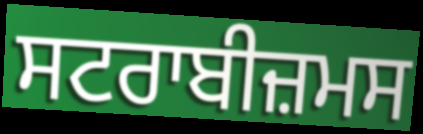
ਸਟਰਾਬੀਜ਼ਮਸ